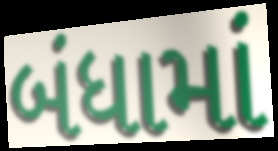
બંધામાં